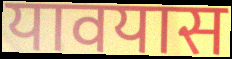
यावयास